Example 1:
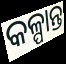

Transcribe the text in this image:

କଳ୍ପାନ୍ତ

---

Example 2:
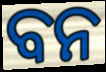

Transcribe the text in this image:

ବନ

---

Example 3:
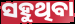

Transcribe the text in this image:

ସହୁଥିବା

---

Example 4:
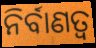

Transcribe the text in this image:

ନିର୍ବାଣତ୍ୱ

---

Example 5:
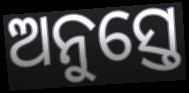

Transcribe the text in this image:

ଅନୁସ୍ତେ